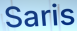
Saris